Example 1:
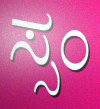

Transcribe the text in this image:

ಸ್ಸಂ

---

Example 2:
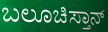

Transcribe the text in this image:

ಬಲೂಚಿಸ್ತಾನ್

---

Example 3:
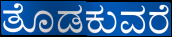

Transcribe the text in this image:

ತೊಡಕುವರೆ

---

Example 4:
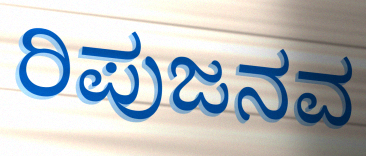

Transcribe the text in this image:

ರಿಪುಜನವ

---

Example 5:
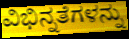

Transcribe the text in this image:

ವಿಭಿನ್ನತೆಗಳನ್ನು